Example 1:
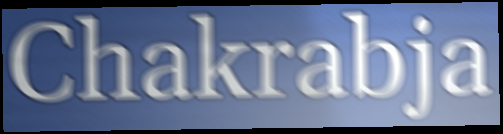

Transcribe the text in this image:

Chakrabja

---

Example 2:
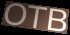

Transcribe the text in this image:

OTB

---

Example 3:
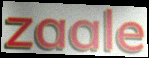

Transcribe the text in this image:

zaale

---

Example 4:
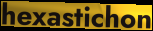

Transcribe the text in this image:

hexastichon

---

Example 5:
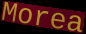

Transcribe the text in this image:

Morea